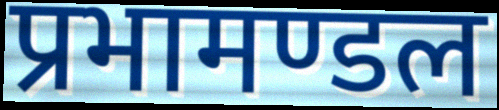
प्रभामण्डल